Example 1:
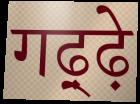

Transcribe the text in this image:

गढ़्ढ़े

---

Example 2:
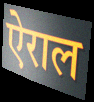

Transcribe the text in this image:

ऐराल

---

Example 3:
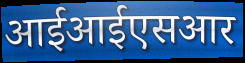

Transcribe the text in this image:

आईआईएसआर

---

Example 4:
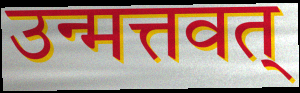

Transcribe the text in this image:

उन्मत्तवत्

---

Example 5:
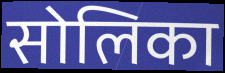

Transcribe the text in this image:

सोलिका